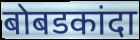
बोबडकांदा